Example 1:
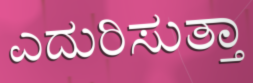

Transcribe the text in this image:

ಎದುರಿಸುತ್ತಾ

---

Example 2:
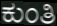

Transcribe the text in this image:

ಕುಂತಿ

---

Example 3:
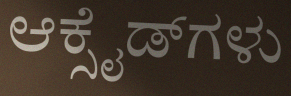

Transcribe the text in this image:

ಆಕ್ಸೈಡ್‌ಗಳು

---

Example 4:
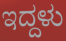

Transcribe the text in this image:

ಇದ್ದಳು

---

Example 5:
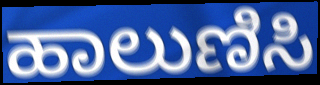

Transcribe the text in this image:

ಹಾಲುಣಿಸಿ